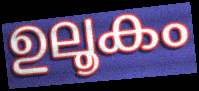
ഉലൂകം